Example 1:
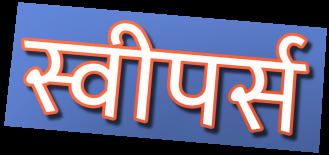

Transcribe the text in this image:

स्वीपर्स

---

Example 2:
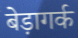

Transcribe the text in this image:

बेड़ागर्क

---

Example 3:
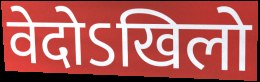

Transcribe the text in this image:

वेदोऽखिलो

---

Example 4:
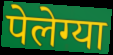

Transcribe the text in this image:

पेलेग्या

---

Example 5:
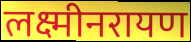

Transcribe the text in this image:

लक्ष्मीनरायण